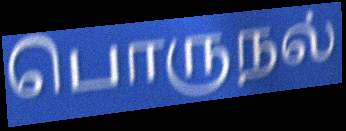
பொருநல்